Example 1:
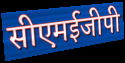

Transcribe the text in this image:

सीएमईजीपी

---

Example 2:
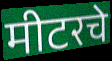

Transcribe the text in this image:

मीटरचे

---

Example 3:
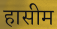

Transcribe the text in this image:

हासीम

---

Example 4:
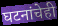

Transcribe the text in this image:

घटनांचेही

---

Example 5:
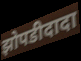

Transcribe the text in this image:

झोपडीदादा